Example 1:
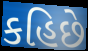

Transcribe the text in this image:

કહિછે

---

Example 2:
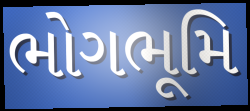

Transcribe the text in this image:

ભોગભૂમિ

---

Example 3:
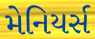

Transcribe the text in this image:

મેનિયર્સ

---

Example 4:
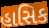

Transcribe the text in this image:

હાસિક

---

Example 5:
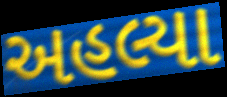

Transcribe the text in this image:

અહલ્યા